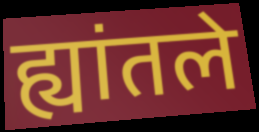
ह्यांतले